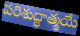
పరిశుద్ధాత్మయే